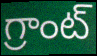
గ్రాంట్